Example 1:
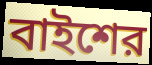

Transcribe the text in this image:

বাইশের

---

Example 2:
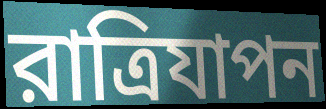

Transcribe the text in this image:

রাত্রিযাপন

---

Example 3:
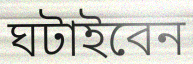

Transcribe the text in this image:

ঘটাইবেন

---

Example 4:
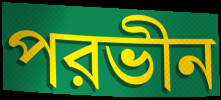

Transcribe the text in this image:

পরভীন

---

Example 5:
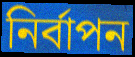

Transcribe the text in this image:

নির্বাপন